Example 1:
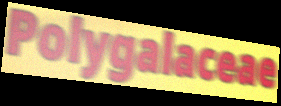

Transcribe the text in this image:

Polygalaceae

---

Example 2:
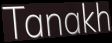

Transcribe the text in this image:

Tanakh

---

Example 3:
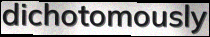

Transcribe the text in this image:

dichotomously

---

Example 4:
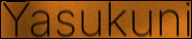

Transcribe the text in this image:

Yasukuni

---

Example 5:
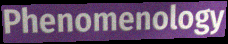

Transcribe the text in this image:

Phenomenology